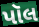
પૉલ